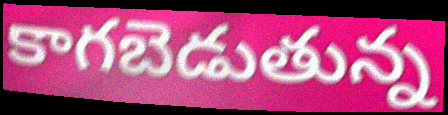
కాగబెడుతున్న